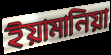
ইয়ামানিয়া